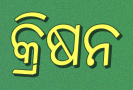
କ୍ରିଷନ